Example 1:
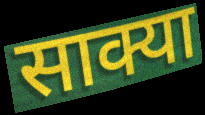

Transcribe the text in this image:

साक्या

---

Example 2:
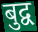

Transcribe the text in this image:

बुद्व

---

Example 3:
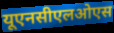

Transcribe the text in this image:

यूएनसीएलओएस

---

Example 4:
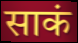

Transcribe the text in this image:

साकं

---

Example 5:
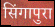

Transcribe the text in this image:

सिंगापुरा